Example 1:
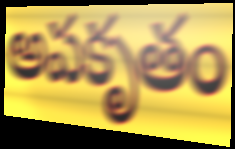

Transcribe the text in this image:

అపకృతం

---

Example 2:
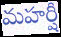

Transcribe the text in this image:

మహర్షీ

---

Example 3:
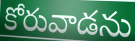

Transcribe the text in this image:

కోరువాడను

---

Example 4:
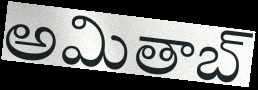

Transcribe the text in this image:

అమితాబ్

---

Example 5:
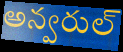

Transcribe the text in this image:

అన్వరుల్